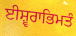
ਈਸ਼੍ਵਰਾਭਿਮਤੰ